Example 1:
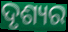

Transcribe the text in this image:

ଦୃଶ୍ୟର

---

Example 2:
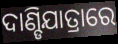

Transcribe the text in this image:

ଦାଣ୍ଡିଯାତ୍ରାରେ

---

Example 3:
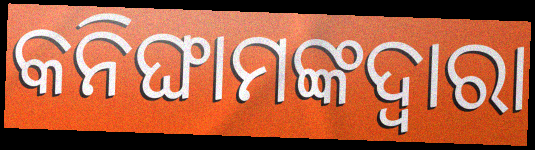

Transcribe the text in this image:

କନିଙ୍ଘାମଙ୍କଦ୍ଵାରା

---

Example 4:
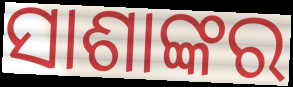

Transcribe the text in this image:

ସାଶାଙ୍କର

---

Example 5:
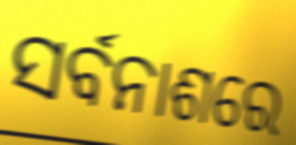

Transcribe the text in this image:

ସର୍ବନାଶରେ